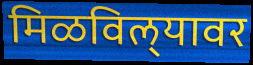
मिळविल्यावर